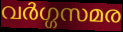
വർഗ്ഗസമര